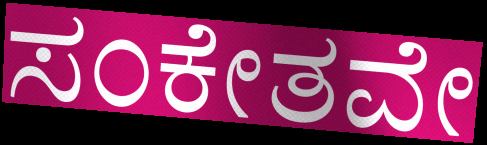
ಸಂಕೇತವೇ